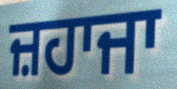
ਜ਼ਹਾਜਾ